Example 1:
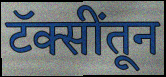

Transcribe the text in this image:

टॅक्सींतून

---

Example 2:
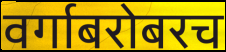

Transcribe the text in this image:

वर्गाबरोबरच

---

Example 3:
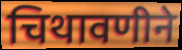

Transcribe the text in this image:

चिथावणीने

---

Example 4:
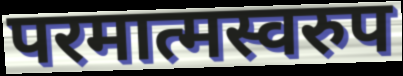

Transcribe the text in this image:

परमात्मस्वरुप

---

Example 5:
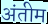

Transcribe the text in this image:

अंतीम